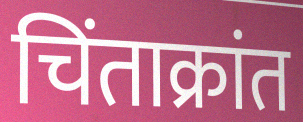
चिंताक्रांत